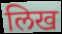
लिख